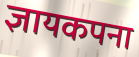
ज्ञायकपना